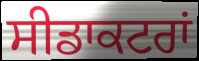
ਸੀਡਾਕਟਰਾਂ